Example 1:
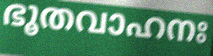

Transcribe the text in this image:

ഭൂതവാഹനഃ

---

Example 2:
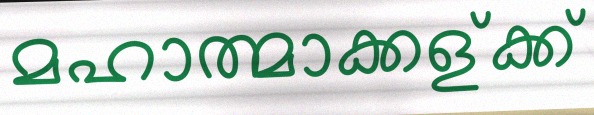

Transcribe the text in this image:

മഹാത്മാക്കള്ക്ക്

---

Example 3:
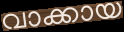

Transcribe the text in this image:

വാക്കായ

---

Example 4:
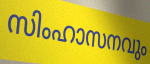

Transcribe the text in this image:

സിംഹാസനവും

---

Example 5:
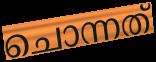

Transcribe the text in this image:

ചൊന്നത്